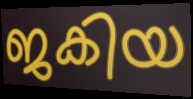
ജകിയ